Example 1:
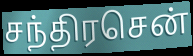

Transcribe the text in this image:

சந்திரசென்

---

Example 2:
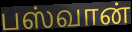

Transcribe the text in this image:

பஸ்வான்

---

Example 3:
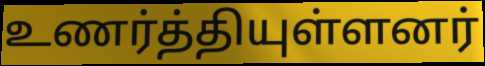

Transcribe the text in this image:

உணர்த்தியுள்ளனர்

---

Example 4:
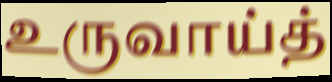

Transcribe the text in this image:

உருவாய்த்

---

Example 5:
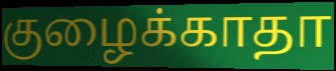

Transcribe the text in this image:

குழைக்காதா